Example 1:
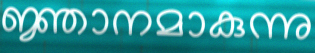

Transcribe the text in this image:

ജ്ഞാനമാകുന്നു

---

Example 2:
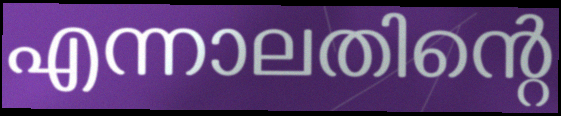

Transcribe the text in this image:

എന്നാലതിന്റെ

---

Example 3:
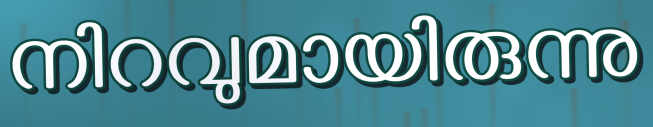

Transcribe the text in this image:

നിറവുമായിരുന്നു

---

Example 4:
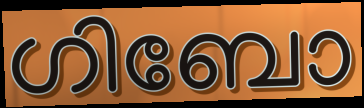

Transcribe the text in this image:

ഗിബോ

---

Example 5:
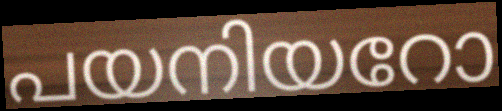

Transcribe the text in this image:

പയനിയറോ